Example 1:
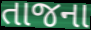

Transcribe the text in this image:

તાજના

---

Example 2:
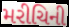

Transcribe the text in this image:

મરીચિની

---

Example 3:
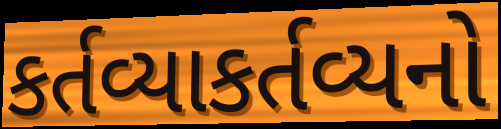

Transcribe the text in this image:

કર્તવ્યાકર્તવ્યનો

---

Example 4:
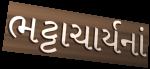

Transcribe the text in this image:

ભટ્ટાચાર્યનાં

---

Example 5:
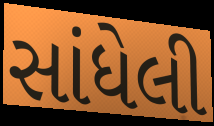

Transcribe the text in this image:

સાંધેલી